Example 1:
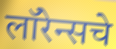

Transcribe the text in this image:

लॉरेन्सचे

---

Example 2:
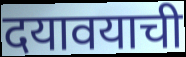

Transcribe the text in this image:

दयावयाची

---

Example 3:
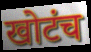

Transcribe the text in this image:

खोटंच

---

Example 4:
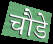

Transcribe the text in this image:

चौडे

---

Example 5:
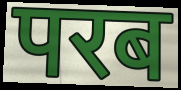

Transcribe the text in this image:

परब